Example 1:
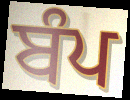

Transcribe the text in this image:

ਬੰਪ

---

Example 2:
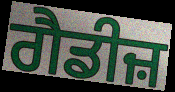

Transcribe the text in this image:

ਗੈਡੀਜ਼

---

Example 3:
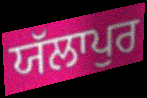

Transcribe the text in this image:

ਯੱਲਾਪੁਰ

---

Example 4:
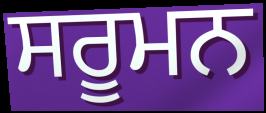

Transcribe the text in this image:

ਸਰੂਮਨ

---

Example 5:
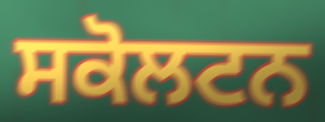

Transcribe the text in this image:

ਸਕੋਲਟਨ